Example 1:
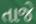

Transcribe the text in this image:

તાજે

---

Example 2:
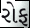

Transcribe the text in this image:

રોફ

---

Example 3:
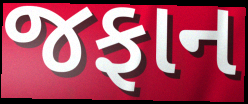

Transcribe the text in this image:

જફાન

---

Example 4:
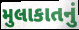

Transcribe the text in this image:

મુલાકાતનું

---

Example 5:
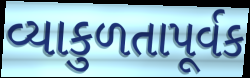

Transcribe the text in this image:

વ્યાકુળતાપૂર્વક